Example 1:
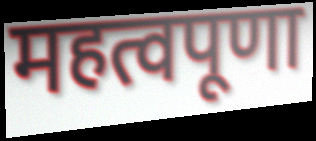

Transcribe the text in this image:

महत्वपूणा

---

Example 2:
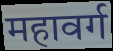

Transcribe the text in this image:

महावर्ग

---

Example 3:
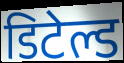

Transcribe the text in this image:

डिटेल्ड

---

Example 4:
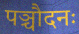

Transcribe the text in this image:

पञ्चौदनः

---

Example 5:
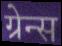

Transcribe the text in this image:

ग्रेन्स